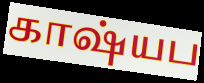
காஷ்யப